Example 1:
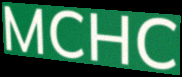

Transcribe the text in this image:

MCHC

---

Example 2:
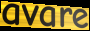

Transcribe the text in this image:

avare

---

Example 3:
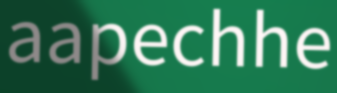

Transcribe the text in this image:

aapechhe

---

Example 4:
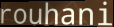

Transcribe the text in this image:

rouhani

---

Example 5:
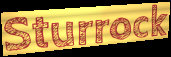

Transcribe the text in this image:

Sturrock